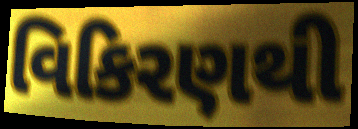
વિકિરણથી